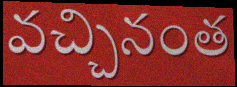
వచ్చినంత